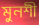
মুনশী